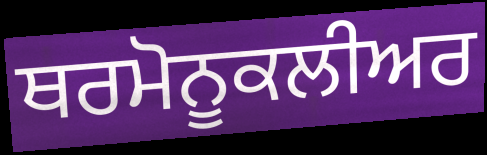
ਥਰਮੋਨੂਕਲੀਅਰ